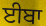
ਈਬਾ